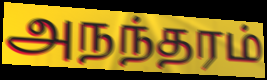
அநந்தரம்